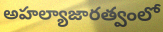
అహల్యాజారత్వంలో